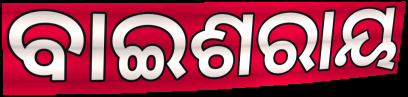
ବାଇଶରାୟ